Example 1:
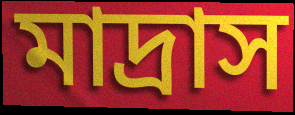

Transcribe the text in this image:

মাদ্রাস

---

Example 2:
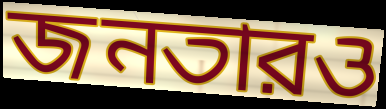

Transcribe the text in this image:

জনতারও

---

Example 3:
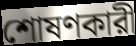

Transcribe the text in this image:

শোষণকারী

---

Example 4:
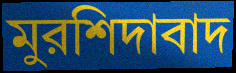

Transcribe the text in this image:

মুরশিদাবাদ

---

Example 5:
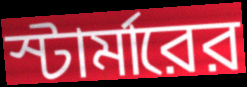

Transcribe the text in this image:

স্টার্মারের